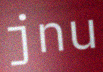
jnu